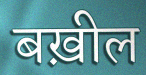
बख़ील